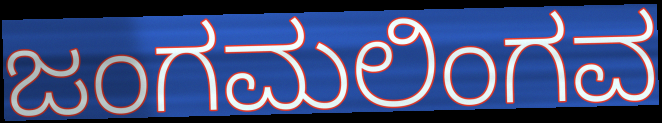
ಜಂಗಮಲಿಂಗವ